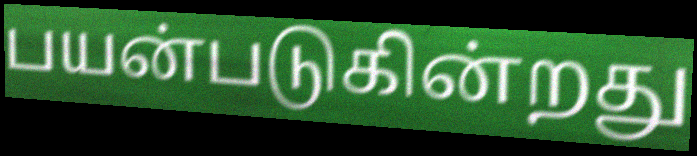
பயன்படுகின்றது